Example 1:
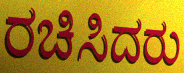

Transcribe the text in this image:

ರಚಿಸಿದರು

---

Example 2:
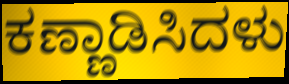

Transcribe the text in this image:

ಕಣ್ಣಾಡಿಸಿದಳು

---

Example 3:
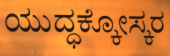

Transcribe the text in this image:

ಯುದ್ಧಕ್ಕೋಸ್ಕರ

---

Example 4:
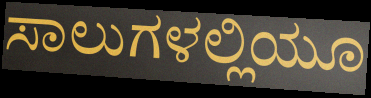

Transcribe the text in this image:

ಸಾಲುಗಳಲ್ಲಿಯೂ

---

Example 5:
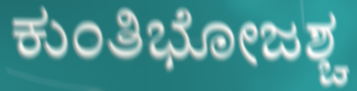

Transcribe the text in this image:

ಕುಂತಿಭೋಜಶ್ಚ